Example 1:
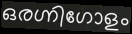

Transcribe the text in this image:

ഒരഗ്നിഗോളം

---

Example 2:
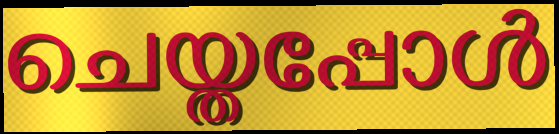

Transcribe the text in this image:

ചെയ്തപ്പോൾ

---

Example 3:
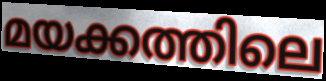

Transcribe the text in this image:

മയക്കത്തിലെ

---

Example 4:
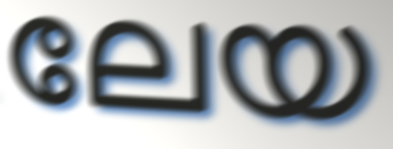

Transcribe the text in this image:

ലേയ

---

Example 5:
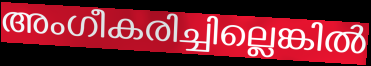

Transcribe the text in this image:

അംഗീകരിച്ചില്ലെങ്കിൽ